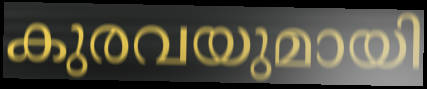
കുരവയുമായി